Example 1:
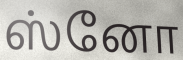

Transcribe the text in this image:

ஸ்னோ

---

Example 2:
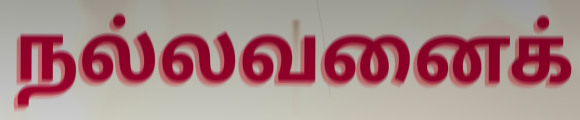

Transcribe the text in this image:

நல்லவனைக்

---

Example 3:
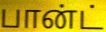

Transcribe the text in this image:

பான்ட்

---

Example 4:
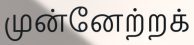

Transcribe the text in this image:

முன்னேற்றக்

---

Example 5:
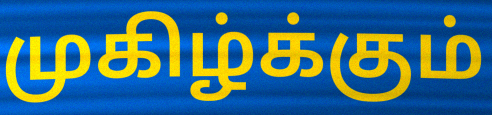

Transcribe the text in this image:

முகிழ்க்கும்